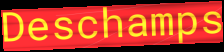
Deschamps